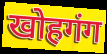
खोहगंग